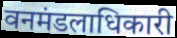
वनमंडलाधिकारी